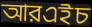
আরএইচ